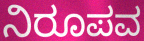
ನಿರೂಪವ